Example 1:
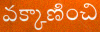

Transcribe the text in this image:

వక్కాణించి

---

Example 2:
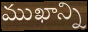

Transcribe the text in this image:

ముఖాన్ని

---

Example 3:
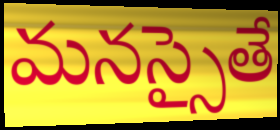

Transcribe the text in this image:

మనస్సైతే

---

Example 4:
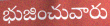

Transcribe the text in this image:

భుజించువారు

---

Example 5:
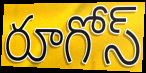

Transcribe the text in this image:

రూగోస్